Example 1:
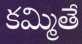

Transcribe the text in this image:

కమ్మితే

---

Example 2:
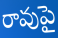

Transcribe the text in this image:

రావుపై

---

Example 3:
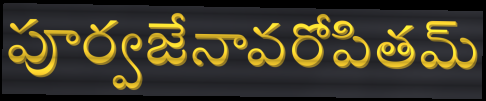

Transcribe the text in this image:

పూర్వజేనావరోపితమ్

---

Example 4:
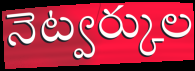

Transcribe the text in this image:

నెట్వర్కుల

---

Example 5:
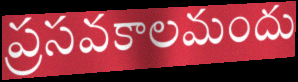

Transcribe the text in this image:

ప్రసవకాలమందు